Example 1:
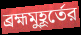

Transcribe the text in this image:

ব্রহ্মমুহূর্তের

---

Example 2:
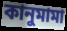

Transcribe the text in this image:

কানুমামা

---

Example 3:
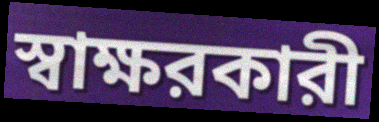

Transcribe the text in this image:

স্বাক্ষরকারী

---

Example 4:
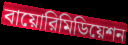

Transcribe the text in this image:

বায়োরিমিডিয়েশন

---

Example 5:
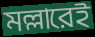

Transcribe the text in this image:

মল্লারেই